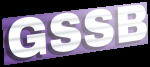
GSSB